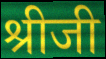
श्रीजी